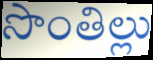
సొంతిల్లు